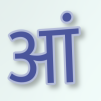
आं